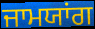
ਜਾਮਯਾਂਗ